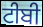
ਟੀਬੀ